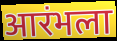
आरंभला